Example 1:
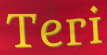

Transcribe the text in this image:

Teri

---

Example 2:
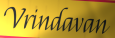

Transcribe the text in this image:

Vrindavan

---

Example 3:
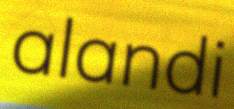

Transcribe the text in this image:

alandi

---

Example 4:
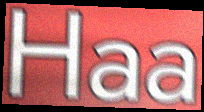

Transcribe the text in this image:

Haa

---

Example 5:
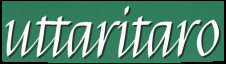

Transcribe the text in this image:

uttaritaro